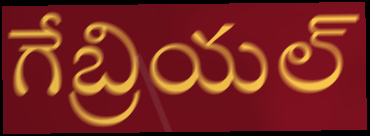
గేబ్రియల్